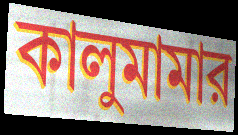
কালুমামার